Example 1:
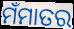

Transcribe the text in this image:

ମଁମାତର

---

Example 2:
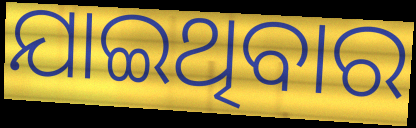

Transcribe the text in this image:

ଯାଇଥିବାର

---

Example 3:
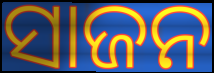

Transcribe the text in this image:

ସାଜନ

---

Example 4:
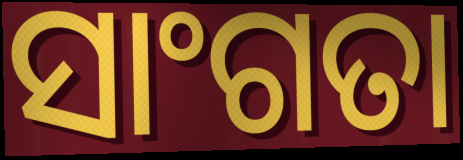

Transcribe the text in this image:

ସାଂଗତା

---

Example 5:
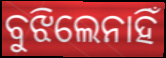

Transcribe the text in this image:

ବୁଝିଲେନାହିଁ